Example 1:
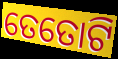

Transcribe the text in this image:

ତେତୋଟି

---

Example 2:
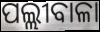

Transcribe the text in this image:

ପଲ୍ଲୀବାଳା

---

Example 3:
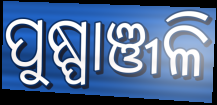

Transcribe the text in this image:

ପୁଷ୍ପାଞ୍ଜଳି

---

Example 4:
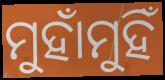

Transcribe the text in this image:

ମୁହାଁମୁହିଁ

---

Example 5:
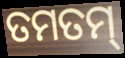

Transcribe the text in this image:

ତମତମ୍